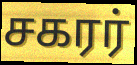
சகரர்